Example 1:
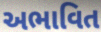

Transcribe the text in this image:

અભાવિત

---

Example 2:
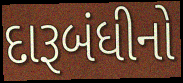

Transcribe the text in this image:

દારૂબંધીનો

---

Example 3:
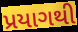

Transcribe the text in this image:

પ્રયાગથી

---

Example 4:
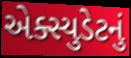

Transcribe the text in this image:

એક્સ્યુડેટનું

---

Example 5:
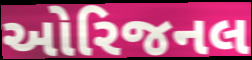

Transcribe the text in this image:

ઓરિજનલ